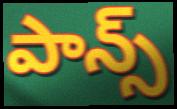
పాన్స్